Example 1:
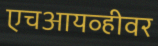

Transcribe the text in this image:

एचआयव्हीवर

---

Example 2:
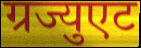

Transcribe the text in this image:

ग्रज्युएट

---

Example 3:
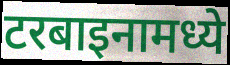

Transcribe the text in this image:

टरबाइनामध्ये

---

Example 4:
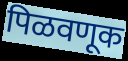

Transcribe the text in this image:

पिळवणूक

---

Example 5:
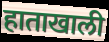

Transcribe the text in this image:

हाताखाली